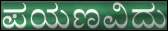
ಪಯಣವಿದು